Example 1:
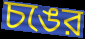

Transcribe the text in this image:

চঙের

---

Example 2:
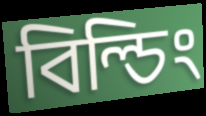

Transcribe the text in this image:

বিল্ডিং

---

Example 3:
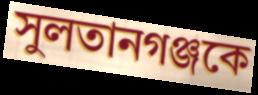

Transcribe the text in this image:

সুলতানগঞ্জকে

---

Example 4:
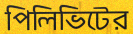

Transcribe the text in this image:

পিলিভিটের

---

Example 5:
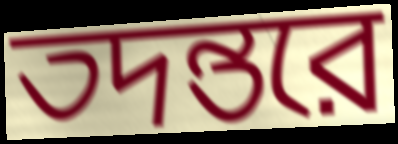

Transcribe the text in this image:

তদন্তরে